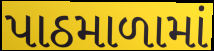
પાઠમાળામાં